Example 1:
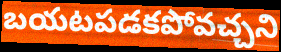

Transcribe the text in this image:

బయటపడకపోవచ్చని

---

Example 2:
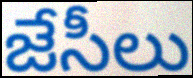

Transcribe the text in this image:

జేసీలు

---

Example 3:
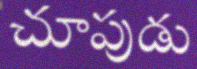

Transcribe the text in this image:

చూపుడు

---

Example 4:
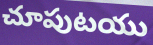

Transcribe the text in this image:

చూపుటయు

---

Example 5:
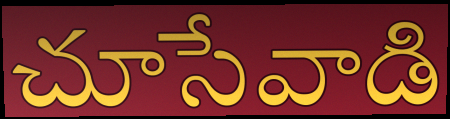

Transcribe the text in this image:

చూసేవాడి